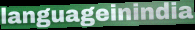
languageinindia